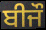
ਬੀਜੌ